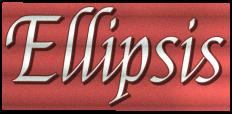
Ellipsis